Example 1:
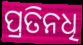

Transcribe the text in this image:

ପ୍ରତିନଧି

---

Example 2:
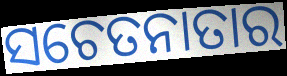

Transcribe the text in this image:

ସଚେତନାତାର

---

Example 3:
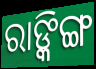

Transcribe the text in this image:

ରାଙ୍କିଙ୍ଗ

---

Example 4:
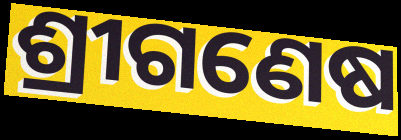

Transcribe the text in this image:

ଶ୍ରୀଗଣେଷ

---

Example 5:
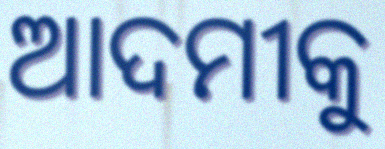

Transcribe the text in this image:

ଆଦମୀକୁ